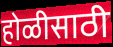
होळीसाठी